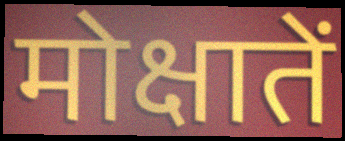
मोक्षातें